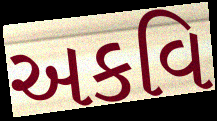
અકવિ